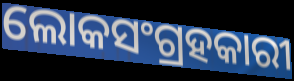
ଲୋକସଂଗ୍ରହକାରୀ